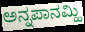
ಅನ್ನಪಾನಮ್ಹಿ